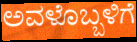
ಅವಳೊಬ್ಬಳಿಗೆ